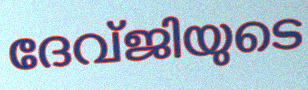
ദേവ്ജിയുടെ